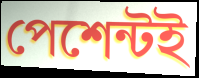
পেশেন্টই